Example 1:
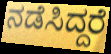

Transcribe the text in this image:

ನಡೆಸಿದ್ದರೆ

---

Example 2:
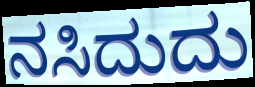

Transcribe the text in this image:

ನಸಿದುದು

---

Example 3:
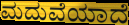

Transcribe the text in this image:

ಮದುವೆಯಾದೆ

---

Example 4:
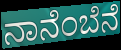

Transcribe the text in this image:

ನಾನೆಂಬೆನೆ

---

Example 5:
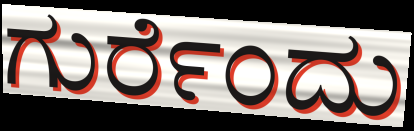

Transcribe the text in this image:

ಗುರ್ರೆಂದು